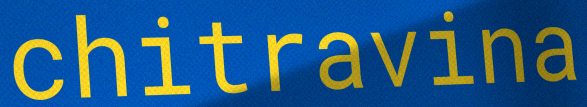
chitravina